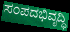
ಸಂಪದಭಿವೃದ್ಧಿ